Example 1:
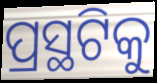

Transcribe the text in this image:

ପ୍ରସ୍ଥଟିକୁ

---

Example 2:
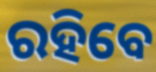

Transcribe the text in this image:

ରହିବେ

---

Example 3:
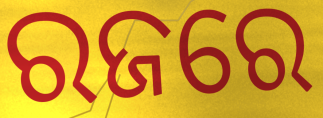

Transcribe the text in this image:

ରଜରେ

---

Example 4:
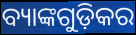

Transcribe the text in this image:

ବ୍ୟାଙ୍କଗୁଡ଼ିକର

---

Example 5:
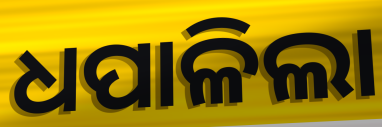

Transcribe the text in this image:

ଧପାଳିଲା